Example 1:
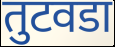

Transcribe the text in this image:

तुटवडा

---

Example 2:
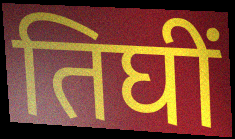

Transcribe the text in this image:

तिघीं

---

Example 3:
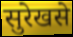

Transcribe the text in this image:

सुरेखसे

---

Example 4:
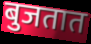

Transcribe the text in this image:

बुजतात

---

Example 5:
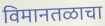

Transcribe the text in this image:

विमानतळाचा